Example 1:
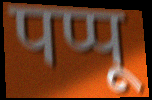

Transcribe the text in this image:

पप्पू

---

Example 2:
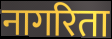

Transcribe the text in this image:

नागरिता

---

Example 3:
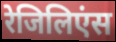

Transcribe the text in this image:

रेजिलिएंस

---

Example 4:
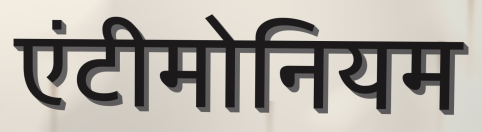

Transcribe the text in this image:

एंटीमोनियम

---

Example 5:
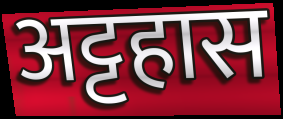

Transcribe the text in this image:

अट्टहास